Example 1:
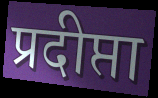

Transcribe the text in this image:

प्रदीप्ता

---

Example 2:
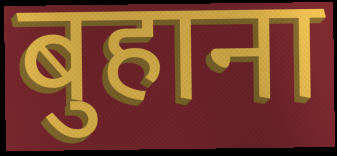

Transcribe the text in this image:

बुहाना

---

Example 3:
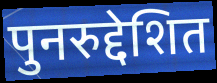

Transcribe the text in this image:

पुनरुद्देशित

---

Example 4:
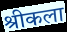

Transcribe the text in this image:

श्रीकला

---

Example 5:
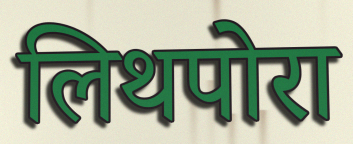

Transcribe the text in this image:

लिथपोरा